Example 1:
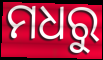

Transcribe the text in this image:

ମଧରୁ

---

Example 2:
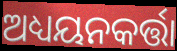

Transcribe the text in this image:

ଅଧ୍ୟୟନକର୍ତ୍ତା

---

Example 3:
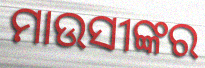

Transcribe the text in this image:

ମାଉସୀଙ୍କର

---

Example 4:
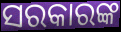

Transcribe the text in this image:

ସରକାରଙ୍କ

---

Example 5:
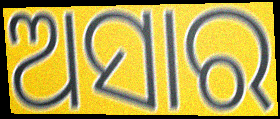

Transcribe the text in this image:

ଅସାର